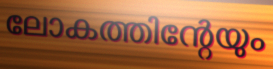
ലോകത്തിന്റേയും